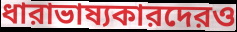
ধারাভাষ্যকারদেরও